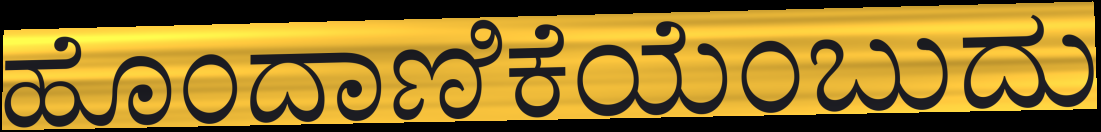
ಹೊಂದಾಣಿಕೆಯೆಂಬುದು